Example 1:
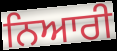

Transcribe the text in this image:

ਨਿਆਰੀ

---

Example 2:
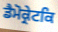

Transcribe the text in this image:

ਡੈਮੋਕ੍ਰੇਟਕਿ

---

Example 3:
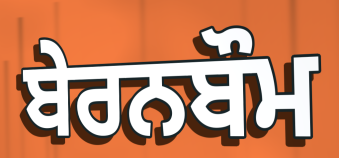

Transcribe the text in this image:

ਬੇਰਨਬੌਮ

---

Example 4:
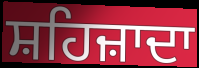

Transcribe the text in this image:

ਸ਼ਹਿਜ਼ਾਦਾ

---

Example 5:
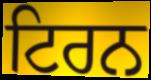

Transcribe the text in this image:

ਟਿਰਨ